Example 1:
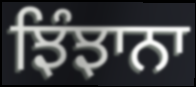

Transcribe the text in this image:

ਝਿੰਝਾਨਾ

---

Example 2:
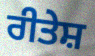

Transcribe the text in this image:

ਰੀਤੇਸ਼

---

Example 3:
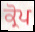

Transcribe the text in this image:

ਕ੍ਰੋਪ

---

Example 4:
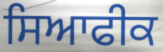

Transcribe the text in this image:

ਸਿਆਫੀਕ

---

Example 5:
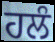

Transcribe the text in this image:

ਹਲੰ